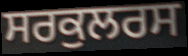
ਸਰਕੁਲਰਸ